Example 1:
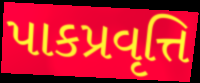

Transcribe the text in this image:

પાકપ્રવૃત્તિ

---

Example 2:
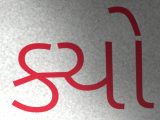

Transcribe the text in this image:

ક્યો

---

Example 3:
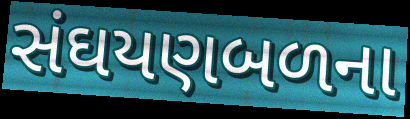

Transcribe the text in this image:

સંઘયણબળના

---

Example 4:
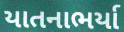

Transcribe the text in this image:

યાતનાભર્યા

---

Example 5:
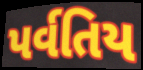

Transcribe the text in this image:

પર્વતિય